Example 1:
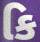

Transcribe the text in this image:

કિ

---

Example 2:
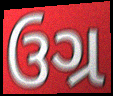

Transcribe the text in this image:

ઉગ્ર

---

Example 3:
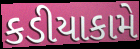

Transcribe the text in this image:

કડીયાકામે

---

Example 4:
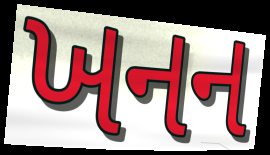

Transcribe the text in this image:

ખનન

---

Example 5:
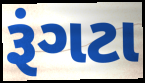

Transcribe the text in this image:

રૂંગટા